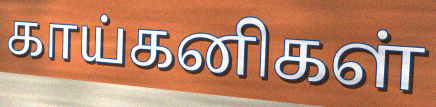
காய்கனிகள்